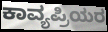
ಕಾವ್ಯಪ್ರಿಯರ